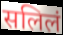
सलिलं